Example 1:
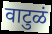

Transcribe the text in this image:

वाटुळं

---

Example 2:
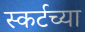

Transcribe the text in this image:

स्कर्टच्या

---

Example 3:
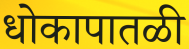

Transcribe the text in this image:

धोकापातळी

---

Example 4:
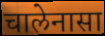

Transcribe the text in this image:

चालेनासा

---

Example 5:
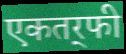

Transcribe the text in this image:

एकतर्फी